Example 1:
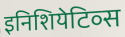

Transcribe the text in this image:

इनिशियेटिव्स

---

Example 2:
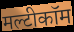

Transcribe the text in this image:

मल्टीकॉम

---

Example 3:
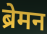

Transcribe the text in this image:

ब्रेमन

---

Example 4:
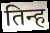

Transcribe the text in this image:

तिन्ह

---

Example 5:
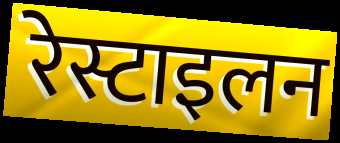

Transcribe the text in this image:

रेस्टाइलन